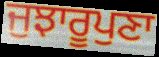
ਜੁਝਾਰੂਪੁਣਾ